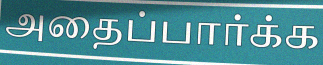
அதைப்பார்க்க